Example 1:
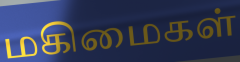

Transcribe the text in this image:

மகிமைகள்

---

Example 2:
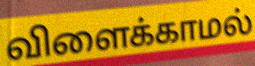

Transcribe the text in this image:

விளைக்காமல்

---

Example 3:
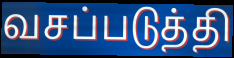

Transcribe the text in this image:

வசப்படுத்தி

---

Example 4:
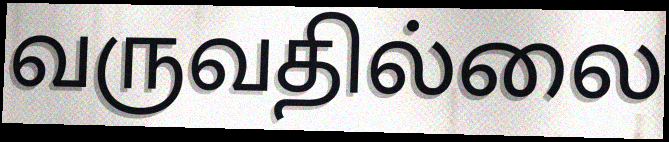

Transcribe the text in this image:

வருவதில்லை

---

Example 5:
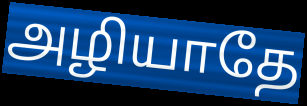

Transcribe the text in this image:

அழியாதே